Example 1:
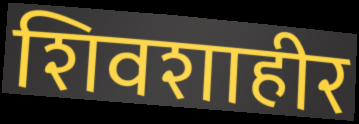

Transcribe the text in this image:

शिवशाहीर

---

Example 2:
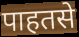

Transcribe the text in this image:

पाहतसे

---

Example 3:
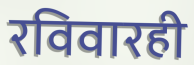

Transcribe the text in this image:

रविवारही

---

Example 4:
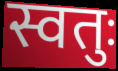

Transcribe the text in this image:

स्वतुः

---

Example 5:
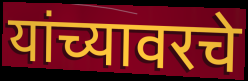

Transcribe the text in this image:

यांच्यावरचे